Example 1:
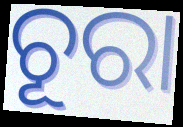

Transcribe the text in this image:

ଚୂରା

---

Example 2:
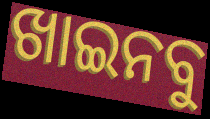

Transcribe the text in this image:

ଖାଇନବୁ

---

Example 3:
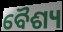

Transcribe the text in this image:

ବୈଶ୍ୟ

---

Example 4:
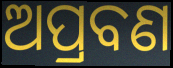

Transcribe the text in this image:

ଅପ୍ରବଣ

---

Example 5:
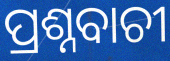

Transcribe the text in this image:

ପ୍ରଶ୍ନବାଚୀ